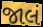
જાલં